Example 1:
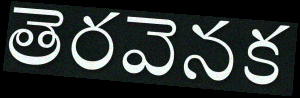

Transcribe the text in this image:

తెరవెనక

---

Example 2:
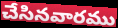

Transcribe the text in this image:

చేసినవారము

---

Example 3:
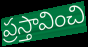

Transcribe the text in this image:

ప్రస్తావించి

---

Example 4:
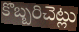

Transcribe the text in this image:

కొబ్బరిచెట్లు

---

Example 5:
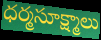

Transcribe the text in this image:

ధర్మసూక్ష్మాలు